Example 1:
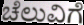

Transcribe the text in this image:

ಚೆಲುವಿಗೆ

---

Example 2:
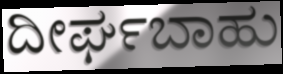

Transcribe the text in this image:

ದೀರ್ಘಬಾಹು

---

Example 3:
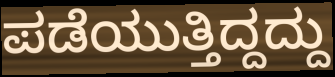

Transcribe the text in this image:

ಪಡೆಯುತ್ತಿದ್ದದ್ದು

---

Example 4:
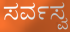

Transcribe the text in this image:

ಸರ್ವಸ್ವ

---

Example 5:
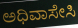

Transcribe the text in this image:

ಅಧಿವಾಸೇಸಿ